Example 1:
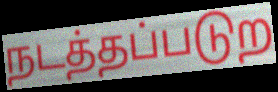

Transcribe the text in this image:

நடத்தப்படுற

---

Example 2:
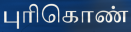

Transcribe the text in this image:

புரிகொண்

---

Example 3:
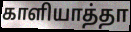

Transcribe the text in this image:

காளியாத்தா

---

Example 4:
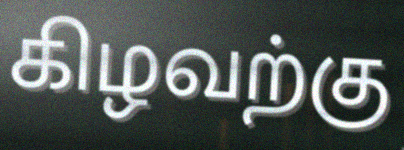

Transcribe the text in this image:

கிழவற்கு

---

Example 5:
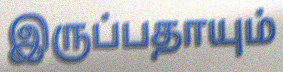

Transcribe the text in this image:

இருப்பதாயும்